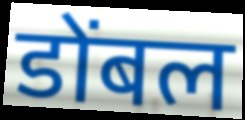
डोंबल